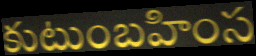
కుటుంబహింస